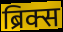
ब्रिक्स